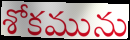
శోకమును